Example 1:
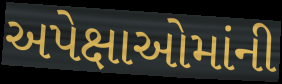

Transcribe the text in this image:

અપેક્ષાઓમાંની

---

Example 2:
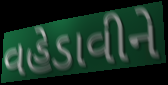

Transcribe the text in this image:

વહેડાવીને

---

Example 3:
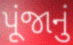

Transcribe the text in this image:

પૂંજાનું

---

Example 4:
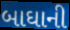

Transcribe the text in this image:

બાઘાની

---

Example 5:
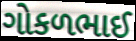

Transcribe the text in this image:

ગોકળભાઈ